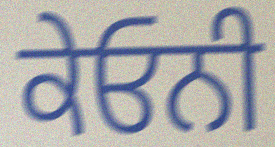
ਕੇਓਨੀ